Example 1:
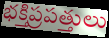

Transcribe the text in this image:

భక్తిప్రపత్తులు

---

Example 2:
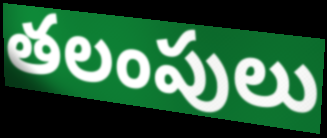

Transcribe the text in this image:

తలంపులు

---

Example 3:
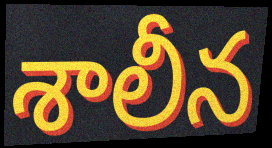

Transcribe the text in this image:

శాలీన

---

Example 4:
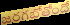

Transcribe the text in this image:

జరగబోతోందో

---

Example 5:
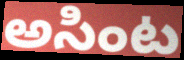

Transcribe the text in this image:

అసింట